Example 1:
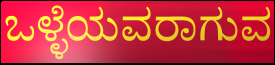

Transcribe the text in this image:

ಒಳ್ಳೆಯವರಾಗುವ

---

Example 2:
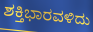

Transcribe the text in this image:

ಶಕ್ತಿಭಾರವಳಿದು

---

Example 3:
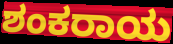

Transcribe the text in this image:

ಶಂಕರಾಯ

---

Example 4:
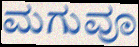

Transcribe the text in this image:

ಮಗುವೂ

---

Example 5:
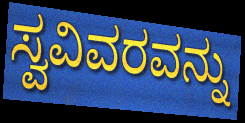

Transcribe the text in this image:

ಸ್ವವಿವರವನ್ನು